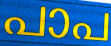
പാപ